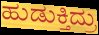
ಹುಡುಕ್ತಿದ್ರು